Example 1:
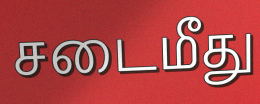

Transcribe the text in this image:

சடைமீது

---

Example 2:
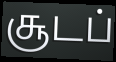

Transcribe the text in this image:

சூடப்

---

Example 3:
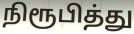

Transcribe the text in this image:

நிரூபித்து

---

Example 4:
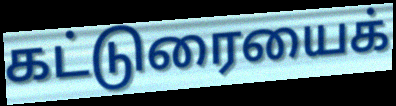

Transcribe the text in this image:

கட்டுரையைக்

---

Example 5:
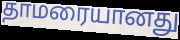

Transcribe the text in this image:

தாமரையானது